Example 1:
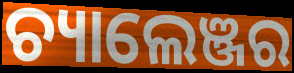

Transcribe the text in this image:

ଚ୍ୟାଲେଞ୍ଜର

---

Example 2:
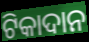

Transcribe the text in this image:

ଟିକାଦାନ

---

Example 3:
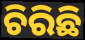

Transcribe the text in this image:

ଚିରିଛି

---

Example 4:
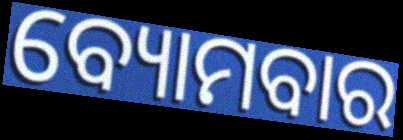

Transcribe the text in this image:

ବ୍ୟୋମବାର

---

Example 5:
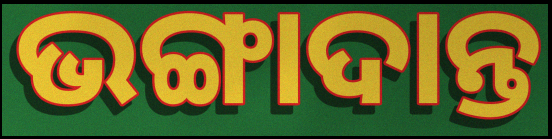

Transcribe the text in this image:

ଭଙ୍ଗାଦାନ୍ତ